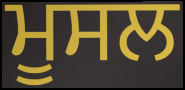
ਮੂਸਲ